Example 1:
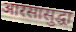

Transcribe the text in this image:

आरसासुद्धा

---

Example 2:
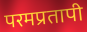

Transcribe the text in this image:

परमप्रतापी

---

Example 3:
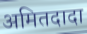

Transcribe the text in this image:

अमितदादा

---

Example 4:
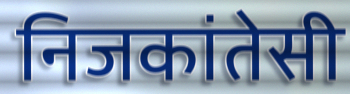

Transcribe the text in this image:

निजकांतेसी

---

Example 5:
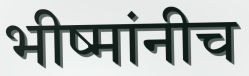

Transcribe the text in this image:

भीष्मांनीच